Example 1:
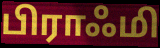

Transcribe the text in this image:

பிராஃமி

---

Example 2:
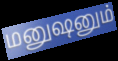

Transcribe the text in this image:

மனுஷனும்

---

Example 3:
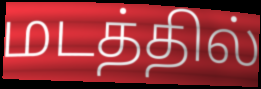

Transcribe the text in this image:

மடத்தில்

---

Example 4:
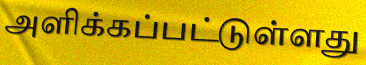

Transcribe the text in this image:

அளிக்கப்பட்டுள்ளது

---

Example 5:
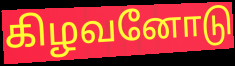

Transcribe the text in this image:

கிழவனோடு